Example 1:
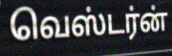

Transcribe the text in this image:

வெஸ்டர்ன்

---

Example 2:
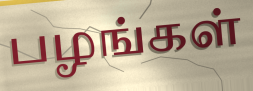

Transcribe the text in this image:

பழங்கள்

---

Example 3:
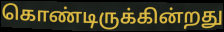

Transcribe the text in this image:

கொண்டிருக்கின்றது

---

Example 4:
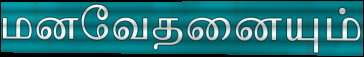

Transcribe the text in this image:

மனவேதனையும்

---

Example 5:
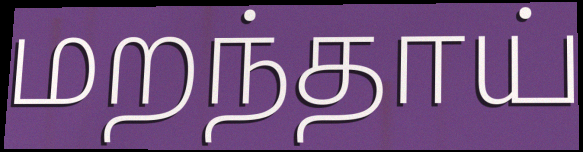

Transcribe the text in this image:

மறந்தாய்